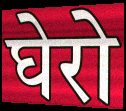
घेरो